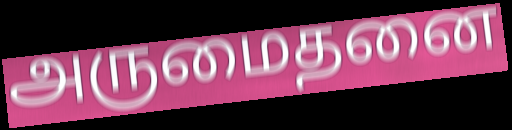
அருமைதனை